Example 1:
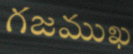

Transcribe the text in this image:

గజముఖ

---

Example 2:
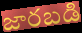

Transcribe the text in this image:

జారబడి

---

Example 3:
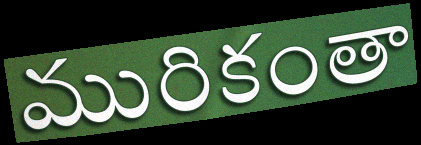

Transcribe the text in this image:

మురికంతా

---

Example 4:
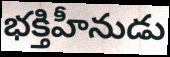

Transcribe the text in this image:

భక్తిహీనుడు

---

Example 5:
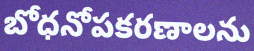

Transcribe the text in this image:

బోధనోపకరణాలను